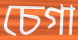
চেগা